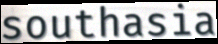
southasia